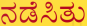
ನಡೆಸಿತು